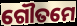
ଗୌତମେ